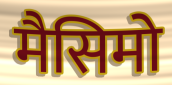
मैसिमो